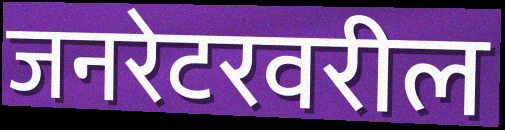
जनरेटरवरील